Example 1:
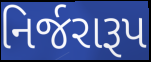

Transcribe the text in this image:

નિર્જરારૂપ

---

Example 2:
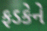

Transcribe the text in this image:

ફડકેને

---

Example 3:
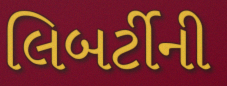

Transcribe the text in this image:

લિબર્ટીની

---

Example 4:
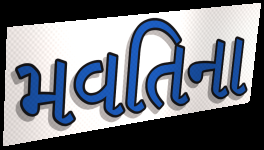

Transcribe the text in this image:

મવતિના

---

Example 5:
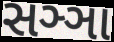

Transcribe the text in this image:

સઞ્ઞા